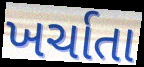
ખર્ચાતા